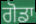
ਗੋਡਾ